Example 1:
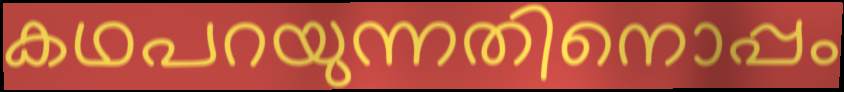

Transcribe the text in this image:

കഥപറയുന്നതിനൊപ്പം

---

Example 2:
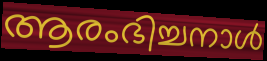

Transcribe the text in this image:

ആരംഭിച്ചനാൾ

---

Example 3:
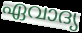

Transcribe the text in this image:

ഏവാദ്യ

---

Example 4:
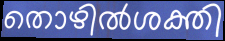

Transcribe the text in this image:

തൊഴിൽശക്തി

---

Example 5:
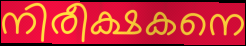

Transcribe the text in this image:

നിരീക്ഷകനെ